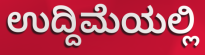
ಉದ್ದಿಮೆಯಲ್ಲಿ